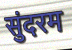
सुंदरम